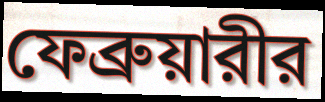
ফেব্রুয়ারীর